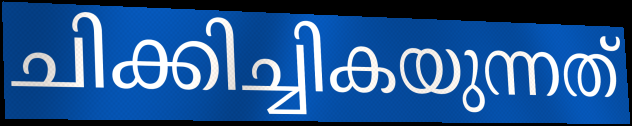
ചിക്കിച്ചികയുന്നത്